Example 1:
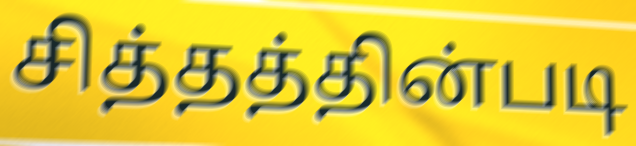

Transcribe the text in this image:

சித்தத்தின்படி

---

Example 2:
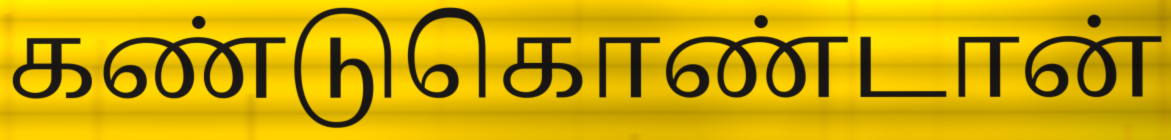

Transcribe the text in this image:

கண்டுகொண்டான்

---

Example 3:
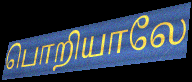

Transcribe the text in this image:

பொறியாலே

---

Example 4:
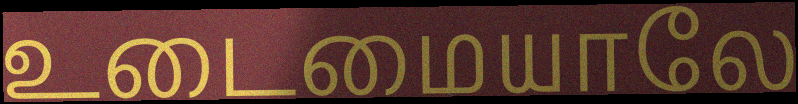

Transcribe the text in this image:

உடைமையாலே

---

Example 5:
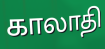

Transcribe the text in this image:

காலாதி